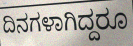
ದಿನಗಳಾಗಿದ್ದರೂ